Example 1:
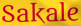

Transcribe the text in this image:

Sakale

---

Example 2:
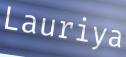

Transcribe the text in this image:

Lauriya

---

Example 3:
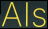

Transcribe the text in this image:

AIs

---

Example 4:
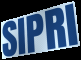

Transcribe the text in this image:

SIPRI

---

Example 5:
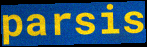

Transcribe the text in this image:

parsis